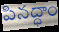
పినద్ధాం